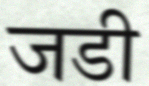
जडी